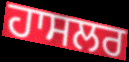
ਹਾਸਲਰ